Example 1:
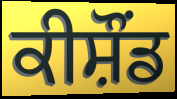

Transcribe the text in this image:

ਕੀਸ਼ੌਂਡ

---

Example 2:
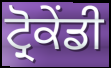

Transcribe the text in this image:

ਟ੍ਰੋਕੇਂਡੀ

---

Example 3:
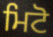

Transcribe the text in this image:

ਮਿਟੋ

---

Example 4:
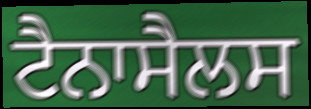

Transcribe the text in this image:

ਟੈਨਾਸੈਲਸ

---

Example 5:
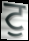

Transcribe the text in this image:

ਟੁ